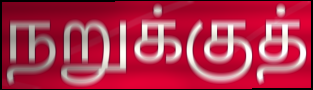
நறுக்குத்